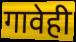
गावेही